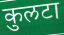
कुलटा